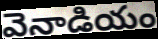
వెనాడియం